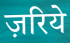
ज़रिये